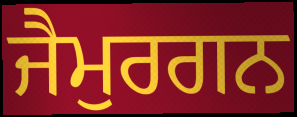
ਜੈਮੁਰਗਨ